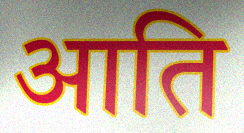
आति